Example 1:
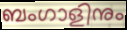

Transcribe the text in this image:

ബംഗാളിനും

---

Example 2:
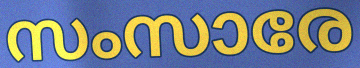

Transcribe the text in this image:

സംസാരേ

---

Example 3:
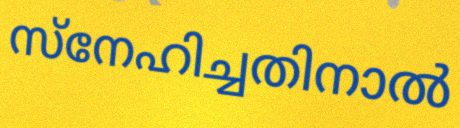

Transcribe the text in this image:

സ്നേഹിച്ചതിനാൽ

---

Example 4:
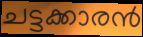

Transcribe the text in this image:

ചട്ടക്കാരൻ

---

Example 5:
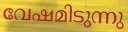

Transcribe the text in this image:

വേഷമിടുന്നു